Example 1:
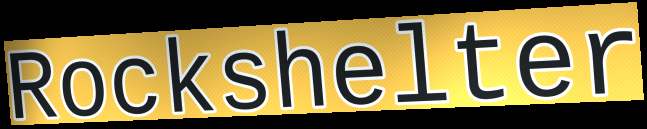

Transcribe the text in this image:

Rockshelter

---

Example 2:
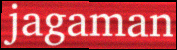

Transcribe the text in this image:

jagaman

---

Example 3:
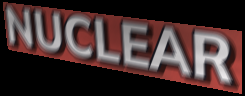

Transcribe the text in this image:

NUCLEAR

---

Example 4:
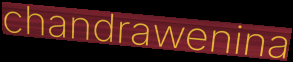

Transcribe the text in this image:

chandrawenina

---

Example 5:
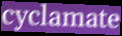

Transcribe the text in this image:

cyclamate